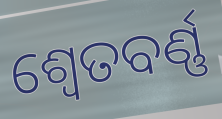
ଶ୍ୱେତବର୍ଣ୍ଣ